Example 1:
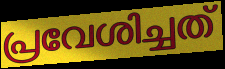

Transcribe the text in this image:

പ്രവേശിച്ചത്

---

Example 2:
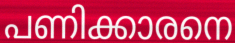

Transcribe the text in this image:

പണിക്കാരനെ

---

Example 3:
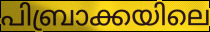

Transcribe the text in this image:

പിബ്രാക്കയിലെ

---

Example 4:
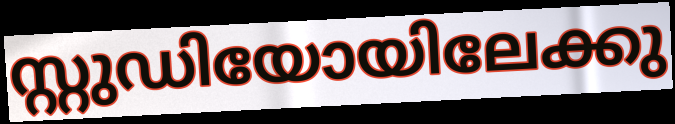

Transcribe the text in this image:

സ്റ്റുഡിയോയിലേക്കു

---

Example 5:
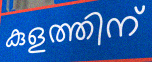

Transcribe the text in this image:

കുളത്തിന്